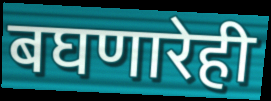
बघणारेही